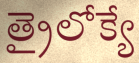
త్రైలోక్యే